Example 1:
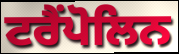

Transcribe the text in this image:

ਟਰੈਂਪੋਲਿਨ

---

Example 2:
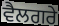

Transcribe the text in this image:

ਵੈਲਗਰੇ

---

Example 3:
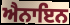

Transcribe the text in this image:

ਐਨਾਇਨ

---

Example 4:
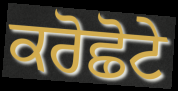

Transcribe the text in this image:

ਕਰੋਛੋਟੇ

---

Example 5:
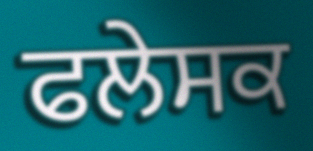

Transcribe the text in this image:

ਫਲੇਸਕ